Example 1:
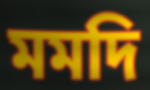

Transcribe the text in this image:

মমদি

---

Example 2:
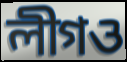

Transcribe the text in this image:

লীগও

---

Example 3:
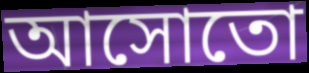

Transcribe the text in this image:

আসোতো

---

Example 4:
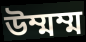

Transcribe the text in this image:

উম্মম্ম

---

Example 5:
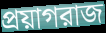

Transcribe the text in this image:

প্রয়াগরাজ